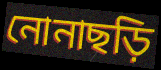
নোনাছড়ি